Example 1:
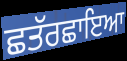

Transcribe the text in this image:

ਛਤੱਰਛਾਇਆ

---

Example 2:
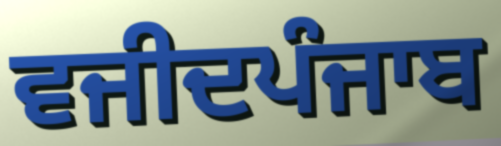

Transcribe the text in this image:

ਵਜੀਦਪੰਜਾਬ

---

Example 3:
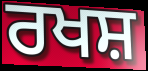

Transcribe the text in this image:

ਰਖਸ਼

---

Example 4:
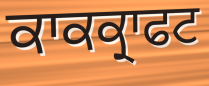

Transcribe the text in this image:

ਕਾਕਕ੍ਰਾਫਟ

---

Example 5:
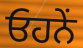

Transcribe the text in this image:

ਓਹਨੇੰ